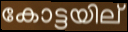
കോട്ടയില്